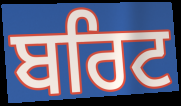
ਬਰਿਟ